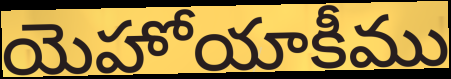
యెహోయాకీము